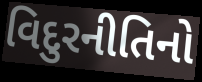
વિદુરનીતિનો